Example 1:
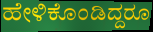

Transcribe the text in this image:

ಹೇಳಿಕೊಂಡಿದ್ದರೂ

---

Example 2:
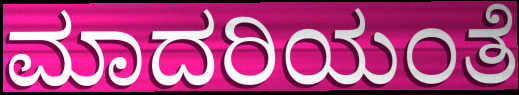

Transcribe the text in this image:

ಮಾದರಿಯಂತೆ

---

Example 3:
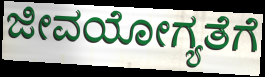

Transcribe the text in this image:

ಜೀವಯೋಗ್ಯತೆಗೆ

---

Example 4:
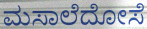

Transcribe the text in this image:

ಮಸಾಲೆದೋಸೆ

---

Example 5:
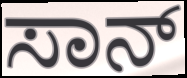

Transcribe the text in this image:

ಸಾನ್